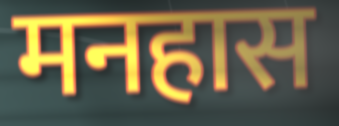
मनहास